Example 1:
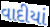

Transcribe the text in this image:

વાદીયાં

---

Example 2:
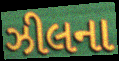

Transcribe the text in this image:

ઝીલના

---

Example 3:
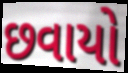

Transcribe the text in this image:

છવાયો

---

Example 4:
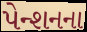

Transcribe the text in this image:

પેન્શનના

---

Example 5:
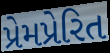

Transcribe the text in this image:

પ્રેમપ્રેરિત